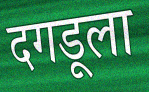
दगडूला